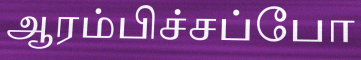
ஆரம்பிச்சப்போ